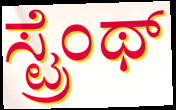
ಸ್ಟ್ರೆಂಥ್